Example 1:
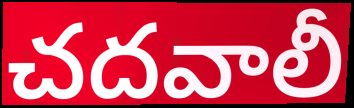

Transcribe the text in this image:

చదవాలీ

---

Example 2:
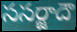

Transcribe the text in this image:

ససర్జాదౌ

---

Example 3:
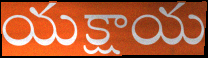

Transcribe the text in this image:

యక్షాయ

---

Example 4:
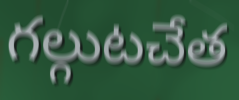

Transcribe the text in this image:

గల్గుటచేత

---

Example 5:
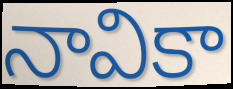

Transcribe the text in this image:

నావికా